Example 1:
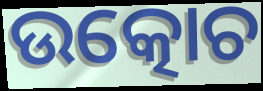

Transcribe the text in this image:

ଉତ୍କୋଚ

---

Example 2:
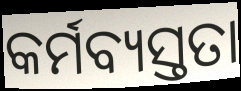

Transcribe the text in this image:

କର୍ମବ୍ୟସ୍ତତା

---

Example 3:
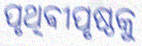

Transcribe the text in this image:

ପୃଥିଵୀପୃଷ୍ଠକୁ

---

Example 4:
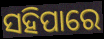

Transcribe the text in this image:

ସହିପାରେ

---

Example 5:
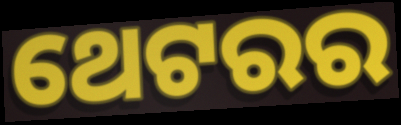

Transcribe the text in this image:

ଥେଟରର